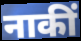
नाकीं